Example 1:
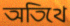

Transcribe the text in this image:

অতিথে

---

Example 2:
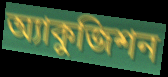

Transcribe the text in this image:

অ্যাকুজিশন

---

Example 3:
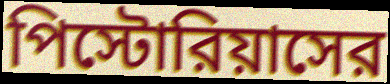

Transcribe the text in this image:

পিস্টোরিয়াসের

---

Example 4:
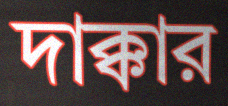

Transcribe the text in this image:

দাক্কার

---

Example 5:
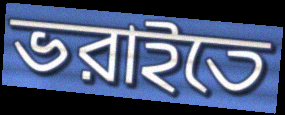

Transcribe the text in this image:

ভরাইতে